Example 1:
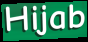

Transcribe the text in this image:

Hijab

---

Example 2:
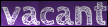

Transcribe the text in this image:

vacant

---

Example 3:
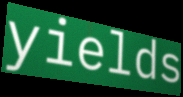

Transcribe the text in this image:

yields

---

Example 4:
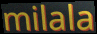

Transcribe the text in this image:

milala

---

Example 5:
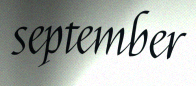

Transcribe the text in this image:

september